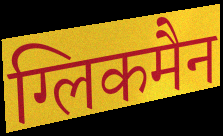
ग्लिकमैन